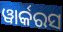
ୱାର୍କରସ